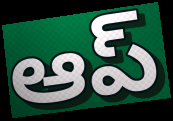
ఆప్